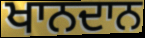
ਖਾਨਦਾਨ